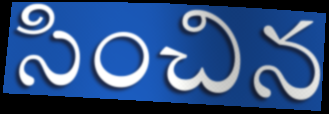
సించిన